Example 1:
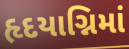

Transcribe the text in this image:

હૃદયાગ્નિમાં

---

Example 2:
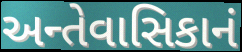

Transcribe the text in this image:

અન્તેવાસિકાનં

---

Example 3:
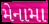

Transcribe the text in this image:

મેનામા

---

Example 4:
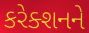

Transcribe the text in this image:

કરેક્શનને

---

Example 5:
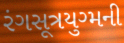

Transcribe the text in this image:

રંગસૂત્રયુગ્મની